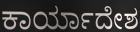
ಕಾರ್ಯಾದೇಶ